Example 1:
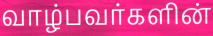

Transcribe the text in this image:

வாழ்பவர்களின்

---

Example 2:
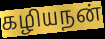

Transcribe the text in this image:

கழியநன்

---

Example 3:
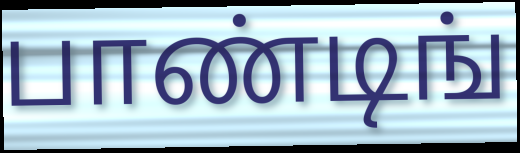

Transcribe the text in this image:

பாண்டிங்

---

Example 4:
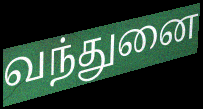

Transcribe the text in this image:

வந்துனை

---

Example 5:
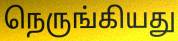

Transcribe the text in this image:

நெருங்கியது